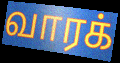
வாரக்